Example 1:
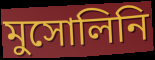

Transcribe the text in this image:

মুসোলিনি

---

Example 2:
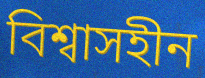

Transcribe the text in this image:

বিশ্বাসহীন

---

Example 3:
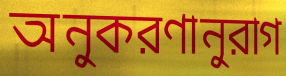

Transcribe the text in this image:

অনুকরণানুরাগ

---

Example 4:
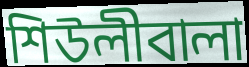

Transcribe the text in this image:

শিউলীবালা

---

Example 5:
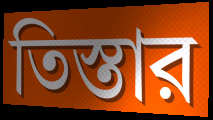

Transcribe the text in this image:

তিস্তার